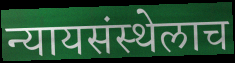
न्यायसंस्थेलाच